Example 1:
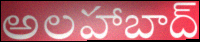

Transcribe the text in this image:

అలహాబాద్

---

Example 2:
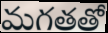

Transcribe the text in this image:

మగతతో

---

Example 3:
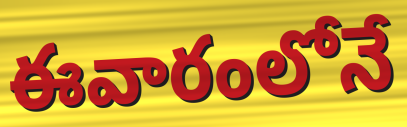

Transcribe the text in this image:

ఈవారంలోనే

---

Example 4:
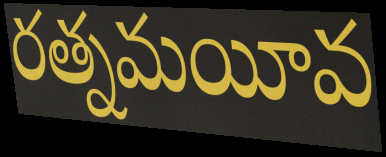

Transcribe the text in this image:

రత్నమయీవ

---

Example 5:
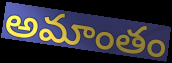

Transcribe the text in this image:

అమాంతం